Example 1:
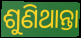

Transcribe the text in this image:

ଶୁଣିଥାନ୍ତା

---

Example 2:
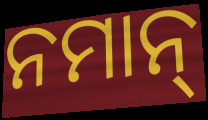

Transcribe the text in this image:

ନମାନ୍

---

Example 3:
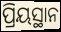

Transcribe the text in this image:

ପ୍ରିୟସ୍ଥାନ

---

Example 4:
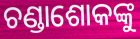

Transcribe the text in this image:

ଚଣ୍ଡାଶୋକଙ୍କୁ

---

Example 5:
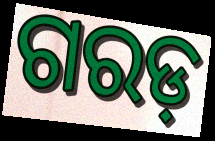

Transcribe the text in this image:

ଗରଡ଼